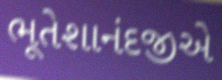
ભૂતેશાનંદજીએ